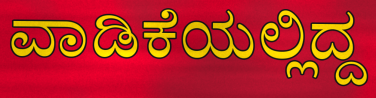
ವಾಡಿಕೆಯಲ್ಲಿದ್ದ